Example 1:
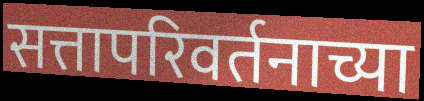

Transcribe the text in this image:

सत्तापरिवर्तनाच्या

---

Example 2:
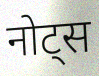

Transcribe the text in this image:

नोट्स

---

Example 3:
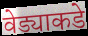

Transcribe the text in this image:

वेड्याकडे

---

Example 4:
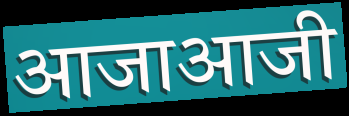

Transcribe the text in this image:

आजाआजी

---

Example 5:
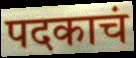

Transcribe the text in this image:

पदकाचं